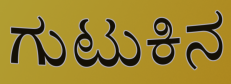
ಗುಟುಕಿನ